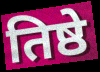
तिष्ठे